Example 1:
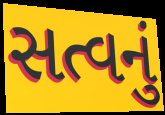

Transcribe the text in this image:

સત્વનું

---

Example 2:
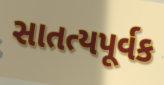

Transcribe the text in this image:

સાતત્યપૂર્વક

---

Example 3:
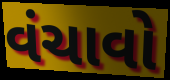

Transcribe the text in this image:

વંચાવો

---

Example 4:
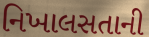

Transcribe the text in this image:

નિખાલસતાની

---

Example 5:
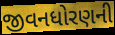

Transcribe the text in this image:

જીવનધોરણની